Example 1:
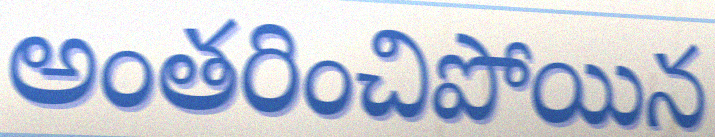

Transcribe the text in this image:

అంతరించిపోయిన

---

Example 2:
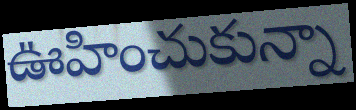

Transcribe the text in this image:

ఊహించుకున్నా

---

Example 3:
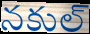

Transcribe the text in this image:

నకుల్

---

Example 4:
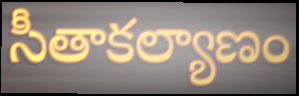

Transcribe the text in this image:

సీతాకల్యాణం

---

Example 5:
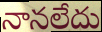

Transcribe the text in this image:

నానలేదు